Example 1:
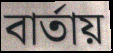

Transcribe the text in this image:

বার্তায়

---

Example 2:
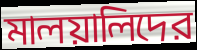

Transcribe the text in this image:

মালয়ালিদের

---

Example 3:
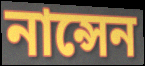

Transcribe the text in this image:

নান্সেন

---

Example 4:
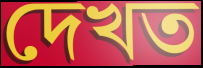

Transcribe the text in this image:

দেখত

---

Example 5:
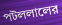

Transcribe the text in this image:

পটললালের